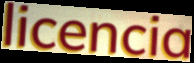
licencia